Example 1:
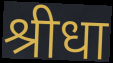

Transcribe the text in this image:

श्रीधा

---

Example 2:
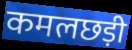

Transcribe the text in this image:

कमलछड़ी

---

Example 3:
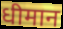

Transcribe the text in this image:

धीमान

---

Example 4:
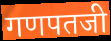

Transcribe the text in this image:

गणपतजी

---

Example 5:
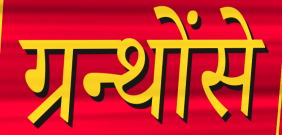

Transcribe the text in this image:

ग्रन्थोंसे